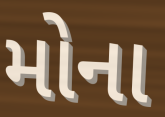
મોના